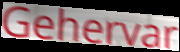
Gehervar